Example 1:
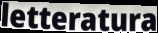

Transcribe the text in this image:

letteratura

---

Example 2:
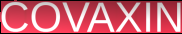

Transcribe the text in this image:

COVAXIN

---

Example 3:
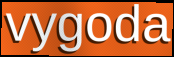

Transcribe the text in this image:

vygoda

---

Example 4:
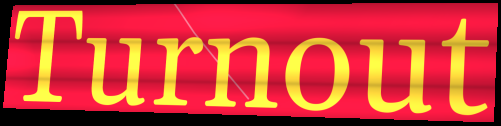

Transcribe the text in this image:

Turnout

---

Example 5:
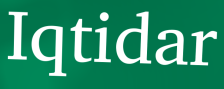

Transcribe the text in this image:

Iqtidar